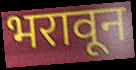
भरावून